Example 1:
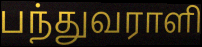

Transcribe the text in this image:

பந்துவராளி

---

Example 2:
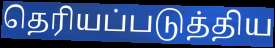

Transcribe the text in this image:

தெரியப்படுத்திய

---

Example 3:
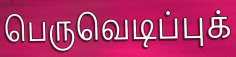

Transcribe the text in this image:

பெருவெடிப்புக்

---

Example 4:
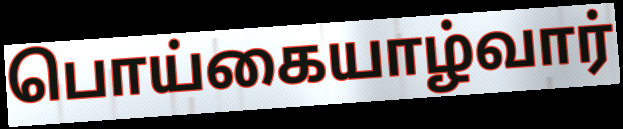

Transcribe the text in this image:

பொய்கையாழ்வார்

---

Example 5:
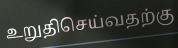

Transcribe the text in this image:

உறுதிசெய்வதற்கு